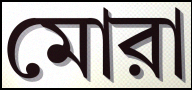
মোরা